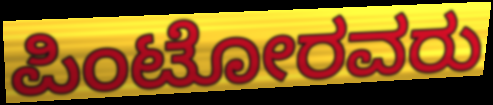
ಪಿಂಟೋರವರು